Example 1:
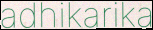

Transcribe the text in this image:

adhikarika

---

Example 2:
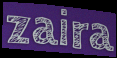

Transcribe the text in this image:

zaira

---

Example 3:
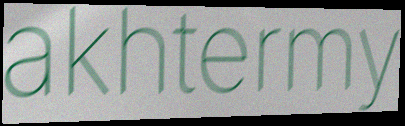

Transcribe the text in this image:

akhtermy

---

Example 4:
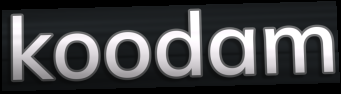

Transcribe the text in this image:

koodam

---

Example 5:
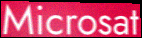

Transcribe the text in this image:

Microsat